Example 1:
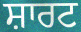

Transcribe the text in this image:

ਸ਼ਾਰਟ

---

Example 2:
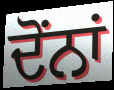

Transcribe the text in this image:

ਦੋਂਨਾਂ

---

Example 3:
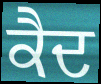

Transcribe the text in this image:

ਕੈਦ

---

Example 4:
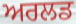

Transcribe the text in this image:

ਅਰਲਡ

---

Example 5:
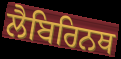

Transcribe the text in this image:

ਲੈਬਿਰਿਨਥ